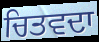
ਚਿਤਵਦਾ